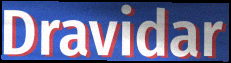
Dravidar